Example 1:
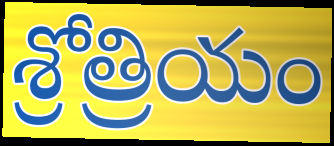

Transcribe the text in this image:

శ్రోత్రియం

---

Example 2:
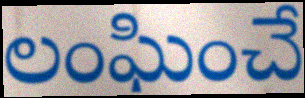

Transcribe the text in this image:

లంఘించే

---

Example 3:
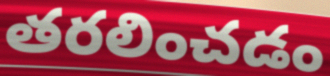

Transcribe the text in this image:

తరలించడం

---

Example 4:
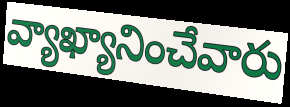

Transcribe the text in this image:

వ్యాఖ్యానించేవారు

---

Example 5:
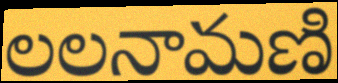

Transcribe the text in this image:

లలనామణి